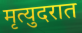
मृत्युदरात